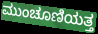
ಮುಂಚೂಣಿಯತ್ತ